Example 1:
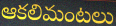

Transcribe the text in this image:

ఆకలిమంటలు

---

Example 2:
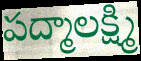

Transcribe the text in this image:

పద్మాలక్ష్మి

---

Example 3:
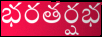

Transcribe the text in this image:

భరతర్షభ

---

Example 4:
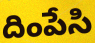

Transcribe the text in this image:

దింపేసి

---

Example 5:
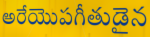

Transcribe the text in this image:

అరేయొపగీతుడైన